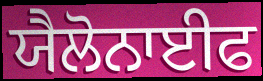
ਯੈਲੋਨਾਈਫ